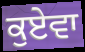
ਕੁਏਵਾ